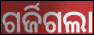
ଗର୍ଜିଗଲା